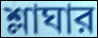
শ্লাঘার